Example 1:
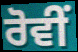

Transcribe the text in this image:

ਰੋਵੀਂ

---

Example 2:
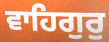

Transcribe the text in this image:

ਵਾਹਿਗੁਰੁ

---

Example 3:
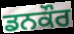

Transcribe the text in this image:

ਡਨਕੌਰ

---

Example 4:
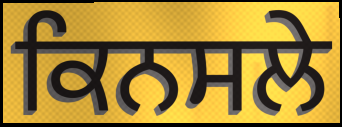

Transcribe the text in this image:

ਕਿਨਸਲੇ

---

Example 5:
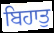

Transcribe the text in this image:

ਬਿਹਾਤੁ